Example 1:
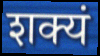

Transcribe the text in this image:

शक्यं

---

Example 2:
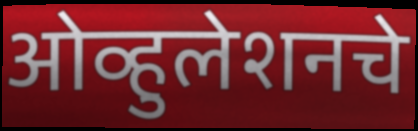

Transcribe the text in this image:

ओव्हुलेशनचे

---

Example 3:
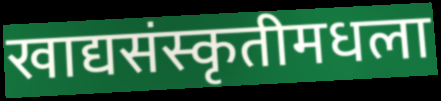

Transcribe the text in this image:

खाद्यसंस्कृतीमधला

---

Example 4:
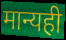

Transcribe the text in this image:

मान्यही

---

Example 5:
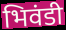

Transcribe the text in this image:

भिवंडी